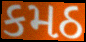
કમઠ